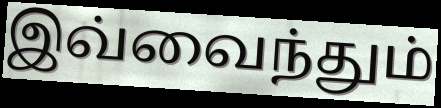
இவ்வைந்தும்